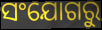
ସଂଯୋଗରୁ